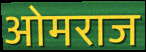
ओमराज